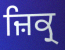
ਜ਼ਿਕ੍ਰ